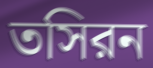
তসিরন